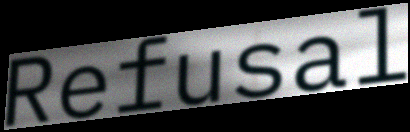
Refusal